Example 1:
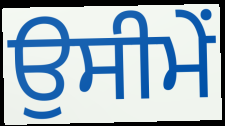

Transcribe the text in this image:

ਉਸੀਮੇਂ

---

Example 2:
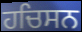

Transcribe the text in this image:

ਹਚਿਸਨ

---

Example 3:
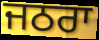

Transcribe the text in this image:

ਜਠਰਾ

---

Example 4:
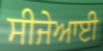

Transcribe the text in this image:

ਸੀਜੇਆਈ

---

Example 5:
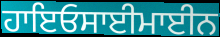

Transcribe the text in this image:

ਹਾਇਓਸਾਈਮਾਈਨ